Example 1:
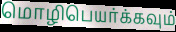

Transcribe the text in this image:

மொழிபெயர்க்கவும்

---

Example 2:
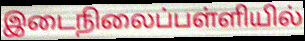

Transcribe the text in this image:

இடைநிலைப்பள்ளியில்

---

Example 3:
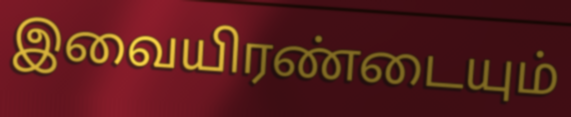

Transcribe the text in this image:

இவையிரண்டையும்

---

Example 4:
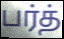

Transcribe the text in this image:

பர்த்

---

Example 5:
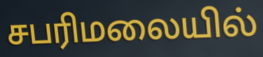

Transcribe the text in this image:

சபரிமலையில்